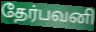
தேர்பவனி